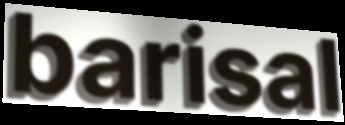
barisal